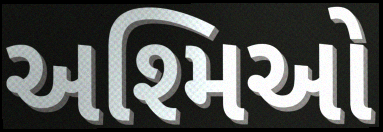
અશ્મિઓ